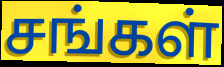
சங்கள்